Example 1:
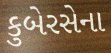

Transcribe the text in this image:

કુબેરસેના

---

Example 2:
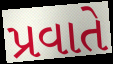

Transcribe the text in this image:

પ્રવાતે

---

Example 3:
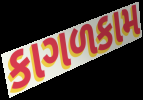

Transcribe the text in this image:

કાગળકામ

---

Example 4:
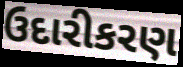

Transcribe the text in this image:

ઉદારીકરણ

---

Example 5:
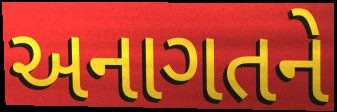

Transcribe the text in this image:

અનાગતને